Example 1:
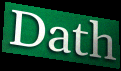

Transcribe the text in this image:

Dath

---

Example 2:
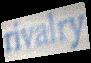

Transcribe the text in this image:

rivalry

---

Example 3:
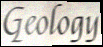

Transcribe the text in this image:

Geology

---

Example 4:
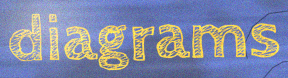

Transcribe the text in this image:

diagrams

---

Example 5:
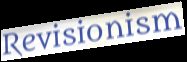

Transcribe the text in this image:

Revisionism